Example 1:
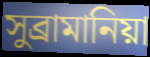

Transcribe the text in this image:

সুব্রামানিয়া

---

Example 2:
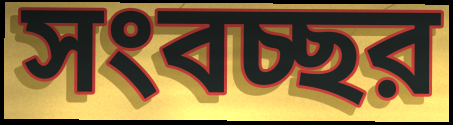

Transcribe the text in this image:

সংবচ্ছর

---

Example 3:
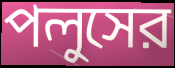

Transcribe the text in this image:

পলুসের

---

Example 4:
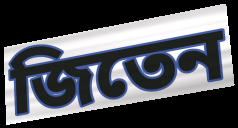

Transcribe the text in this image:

জিতেন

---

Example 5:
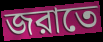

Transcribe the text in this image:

জরাতে